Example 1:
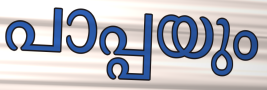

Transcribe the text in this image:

പാപ്പയും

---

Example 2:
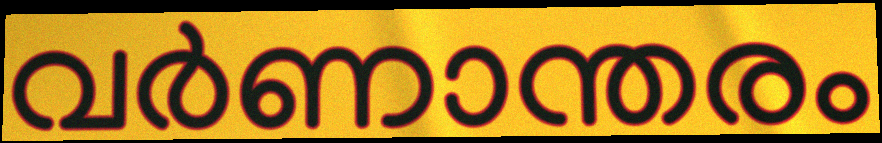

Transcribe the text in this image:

വർണാന്തരം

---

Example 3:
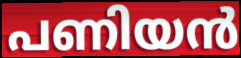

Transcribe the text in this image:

പണിയൻ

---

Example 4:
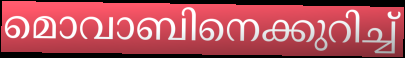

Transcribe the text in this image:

മൊവാബിനെക്കുറിച്ച്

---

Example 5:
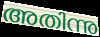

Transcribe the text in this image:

അതിന്നു